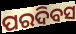
ପରଦିବସ